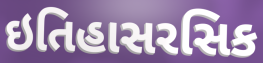
ઇતિહાસરસિક